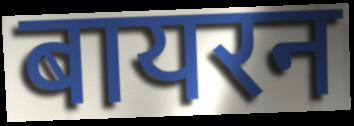
बायरन